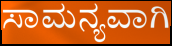
ಸಾಮನ್ಯವಾಗಿ